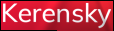
Kerensky